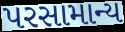
પરસામાન્ય